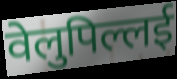
वेलुपिल्लई